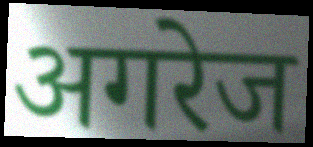
अगरेज